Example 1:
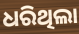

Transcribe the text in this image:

ଧରିଥିଲା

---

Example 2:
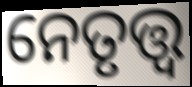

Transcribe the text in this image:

ନେତୃତ୍ତ୍ୱ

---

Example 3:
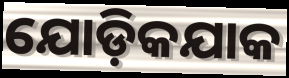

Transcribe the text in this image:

ଯୋଡ଼ିକଯାକ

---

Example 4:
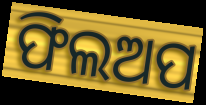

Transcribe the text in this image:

ଫିଲଅପ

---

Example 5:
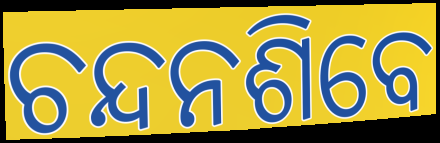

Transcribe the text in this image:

ଚନ୍ଦନଶିବେ